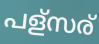
പള്സര്